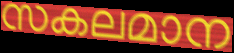
സകലമാന